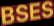
BSES